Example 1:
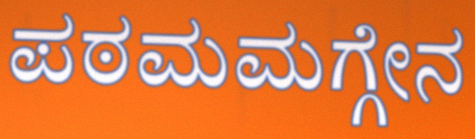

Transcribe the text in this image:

ಪಠಮಮಗ್ಗೇನ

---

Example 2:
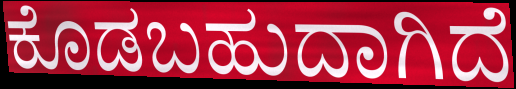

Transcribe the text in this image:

ಕೊಡಬಹುದಾಗಿದೆ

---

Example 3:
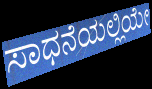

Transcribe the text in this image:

ಸಾಧನೆಯಲ್ಲಿಯೇ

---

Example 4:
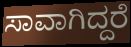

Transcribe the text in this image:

ಸಾವಾಗಿದ್ದರೆ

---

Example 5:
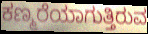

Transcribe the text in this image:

ಕಣ್ಮರೆಯಾಗುತ್ತಿರುವ